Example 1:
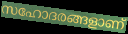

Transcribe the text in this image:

സഹോദരങ്ങളാണ്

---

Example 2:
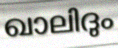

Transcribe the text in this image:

ഖാലിദും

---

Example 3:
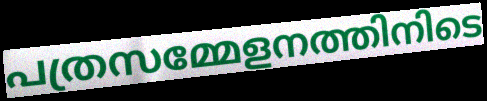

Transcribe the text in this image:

പത്രസമ്മേളനത്തിനിടെ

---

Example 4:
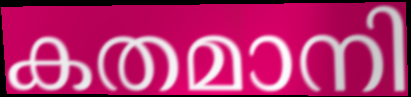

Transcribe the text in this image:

കതമാനി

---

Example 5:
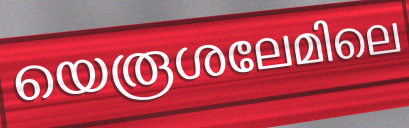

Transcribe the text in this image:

യെരൂശലേമിലെ